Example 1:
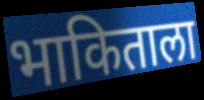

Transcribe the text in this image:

भाकिताला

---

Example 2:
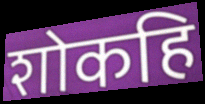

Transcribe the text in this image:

शोकहि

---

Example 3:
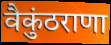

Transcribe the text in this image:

वैकुंठराणा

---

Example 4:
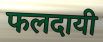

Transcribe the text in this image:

फलदायी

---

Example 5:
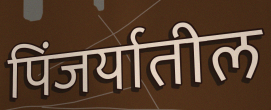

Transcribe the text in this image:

पिंजर्यातील